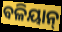
ବଳିୟାନ୍